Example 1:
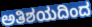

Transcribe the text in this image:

ಅತಿಶಯದಿಂದ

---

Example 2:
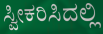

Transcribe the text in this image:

ಸ್ವೀಕರಿಸಿದಲ್ಲಿ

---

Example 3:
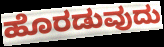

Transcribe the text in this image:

ಹೊರಡುವುದು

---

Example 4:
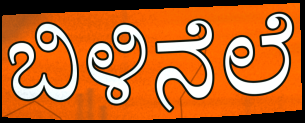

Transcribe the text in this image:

ಬಿಳಿನೆಲೆ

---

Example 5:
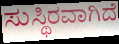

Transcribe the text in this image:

ಸುಸ್ಥಿರವಾಗಿದೆ